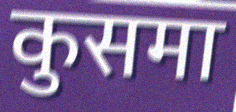
कुसमा